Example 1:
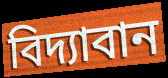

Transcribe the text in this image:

বিদ্যাবান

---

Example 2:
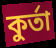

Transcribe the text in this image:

কুৰ্তা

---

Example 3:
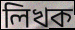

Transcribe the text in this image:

লিখক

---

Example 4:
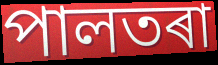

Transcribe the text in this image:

পালতৰা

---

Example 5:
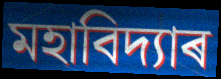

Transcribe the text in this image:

মহাবিদ্যাৰ